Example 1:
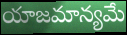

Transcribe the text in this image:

యాజమాన్యమే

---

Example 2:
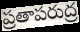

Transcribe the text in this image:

ప్రతాపరుద్ర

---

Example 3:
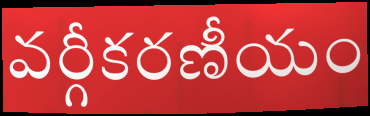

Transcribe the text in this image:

వర్గీకరణీయం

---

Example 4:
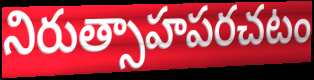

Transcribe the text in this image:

నిరుత్సాహపరచటం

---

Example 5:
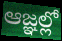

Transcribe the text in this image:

ఆజ్ఞల్లో